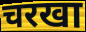
चरखा